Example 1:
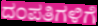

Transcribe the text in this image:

ದಂಪತಿಗಳಿಗೆ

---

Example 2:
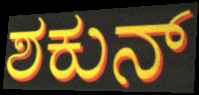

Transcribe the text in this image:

ಶಕುನ್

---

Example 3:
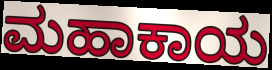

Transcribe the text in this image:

ಮಹಾಕಾಯ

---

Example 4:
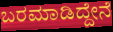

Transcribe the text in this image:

ಬರಮಾಡಿದ್ದೇನೆ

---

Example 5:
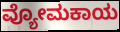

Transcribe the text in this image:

ವ್ಯೋಮಕಾಯ